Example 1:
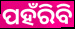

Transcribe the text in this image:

ପହଁରିବି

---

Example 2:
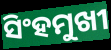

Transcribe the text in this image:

ସିଂହମୁଖୀ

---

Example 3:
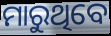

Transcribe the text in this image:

ମାରୁଥିବେ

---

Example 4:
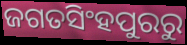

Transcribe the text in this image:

ଜଗତସିଂହପୁରରୁ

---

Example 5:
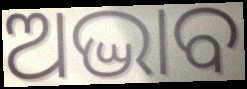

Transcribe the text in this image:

ଅଦ୍ଭାବ